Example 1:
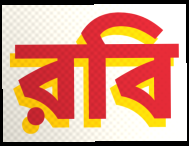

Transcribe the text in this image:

রবি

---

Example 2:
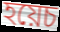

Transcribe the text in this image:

হয়েচ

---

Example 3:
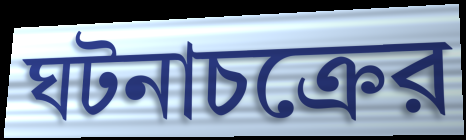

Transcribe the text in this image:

ঘটনাচক্রের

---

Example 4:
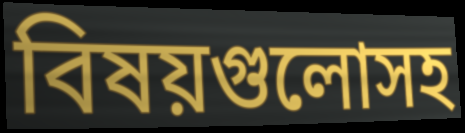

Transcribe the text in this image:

বিষয়গুলোসহ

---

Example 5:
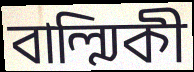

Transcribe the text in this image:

বাল্মিকী